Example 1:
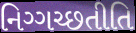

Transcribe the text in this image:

નિગ્ગચ્છતીતિ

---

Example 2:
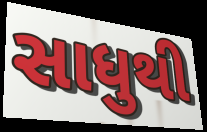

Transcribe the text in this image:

સાધુથી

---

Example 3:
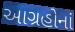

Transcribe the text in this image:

આગ્રહોનાં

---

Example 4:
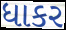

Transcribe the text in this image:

ધાકર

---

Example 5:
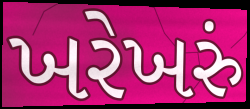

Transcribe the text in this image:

ખરેખરું